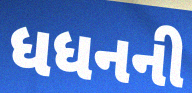
ધધનની